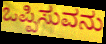
ಒಪ್ಪಿಸುವನು